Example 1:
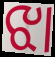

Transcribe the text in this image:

ଝା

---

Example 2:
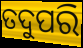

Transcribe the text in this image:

ତଦୁପରି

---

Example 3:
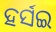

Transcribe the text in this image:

ହର୍ସଇ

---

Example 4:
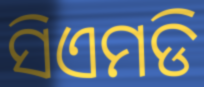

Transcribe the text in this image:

ସିଏମଡି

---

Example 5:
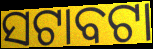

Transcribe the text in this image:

ସଟାବଟା